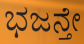
ಭಜನ್ತೇ